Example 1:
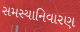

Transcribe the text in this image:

સમસ્યાનિવારણ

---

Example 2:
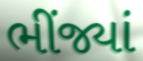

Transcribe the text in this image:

ભીંજ્યાં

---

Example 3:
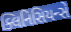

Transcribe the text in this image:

ક્લિનિસિયન્સે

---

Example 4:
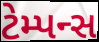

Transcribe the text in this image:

ટેમ્પન્સ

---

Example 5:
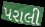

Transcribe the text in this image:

પરાલી